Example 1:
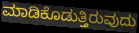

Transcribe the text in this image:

ಮಾಡಿಕೊಡುತ್ತಿರುವುದು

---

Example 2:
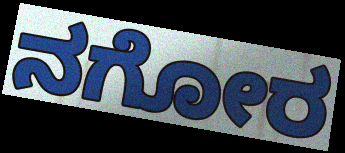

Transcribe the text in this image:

ನಗೋರ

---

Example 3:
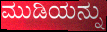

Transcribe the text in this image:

ಮುಡಿಯನ್ನು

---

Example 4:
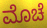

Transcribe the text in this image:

ಮೊಚೆ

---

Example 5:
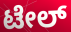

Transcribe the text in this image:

ಟೇಲ್